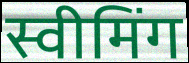
स्वीमिंग